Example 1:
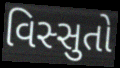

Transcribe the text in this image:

વિસ્સુતો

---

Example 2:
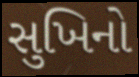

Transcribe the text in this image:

સુખિનો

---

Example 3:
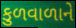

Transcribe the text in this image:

કુળવાળાને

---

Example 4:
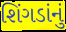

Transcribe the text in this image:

શિંગડાંનું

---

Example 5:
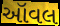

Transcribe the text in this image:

ઑવલ